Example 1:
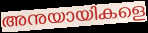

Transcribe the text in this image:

അനുയായികളെ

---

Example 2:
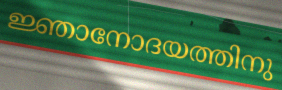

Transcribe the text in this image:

ജ്ഞാനോദയത്തിനു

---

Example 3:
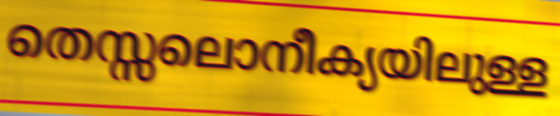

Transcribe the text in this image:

തെസ്സലൊനീക്യയിലുള്ള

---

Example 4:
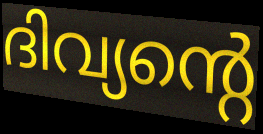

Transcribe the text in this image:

ദിവ്യന്റെ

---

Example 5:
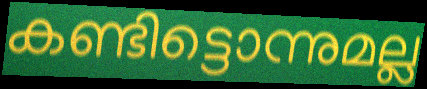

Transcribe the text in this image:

കണ്ടിട്ടൊന്നുമല്ല